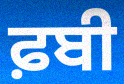
ਫ਼ਬੀ